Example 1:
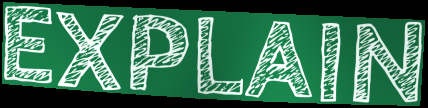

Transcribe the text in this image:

EXPLAIN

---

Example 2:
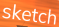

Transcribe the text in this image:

sketch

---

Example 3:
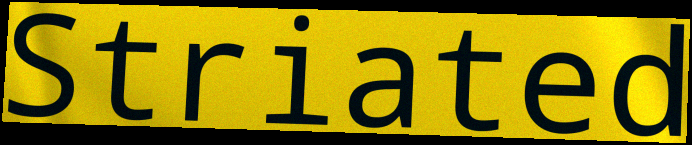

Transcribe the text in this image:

Striated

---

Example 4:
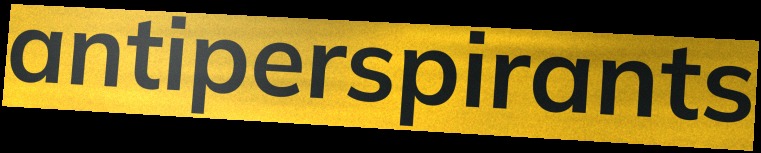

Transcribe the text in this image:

antiperspirants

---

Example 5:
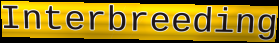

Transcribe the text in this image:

Interbreeding